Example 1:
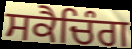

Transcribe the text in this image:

ਸਕੈਚਿੰਗ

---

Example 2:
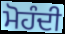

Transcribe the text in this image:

ਮੋਹੰਦੀ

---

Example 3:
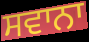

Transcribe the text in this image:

ਸਵਾਨਾ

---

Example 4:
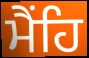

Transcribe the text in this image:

ਮੈਂਹਿ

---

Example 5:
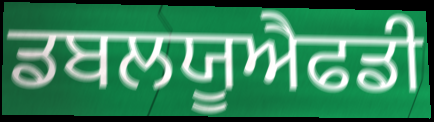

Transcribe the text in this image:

ਡਬਲਯੂਐਫਡੀ